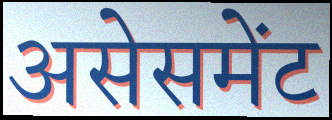
असेसमेंट